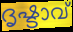
ദൃഷ്ടാവ്